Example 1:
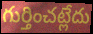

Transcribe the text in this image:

గుర్తించట్లేదు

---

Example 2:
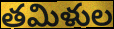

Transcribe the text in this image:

తమిళుల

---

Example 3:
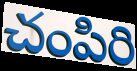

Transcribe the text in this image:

చంపిరి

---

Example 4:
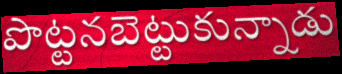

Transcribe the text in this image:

పొట్టనబెట్టుకున్నాడు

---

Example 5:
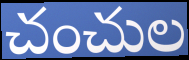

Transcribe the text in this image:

చంచుల